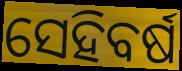
ସେହିବର୍ଷ